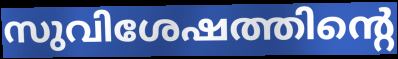
സുവിശേഷത്തിന്റെ